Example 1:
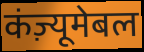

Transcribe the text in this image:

कंज़्यूमेबल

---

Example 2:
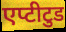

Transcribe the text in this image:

एप्टीटुड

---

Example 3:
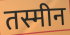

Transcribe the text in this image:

तस्मीन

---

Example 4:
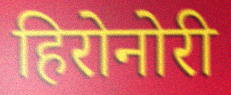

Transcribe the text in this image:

हिरोनोरी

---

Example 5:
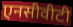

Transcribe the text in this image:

एनसीवीटी